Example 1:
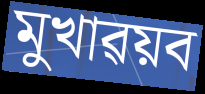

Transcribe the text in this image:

মুখাৱয়ব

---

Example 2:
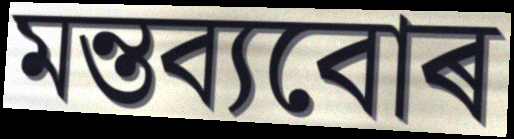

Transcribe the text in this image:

মন্তব্যবোৰ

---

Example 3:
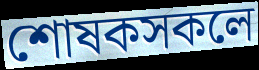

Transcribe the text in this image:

শোষকসকলে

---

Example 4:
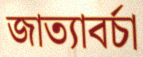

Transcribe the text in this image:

জাত্যাবৰ্চা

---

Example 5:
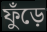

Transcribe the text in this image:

ফুঁড়ে